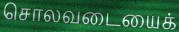
சொலவடையைக்